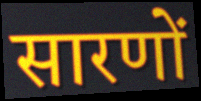
सारणों